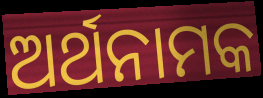
ଅର୍ଥନାମକ